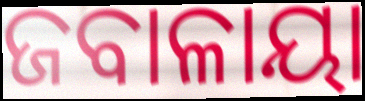
ଜବାଳାୟା